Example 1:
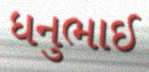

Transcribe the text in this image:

ધનુભાઈ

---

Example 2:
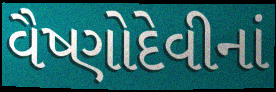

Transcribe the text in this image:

વૈષ્ણોદેવીનાં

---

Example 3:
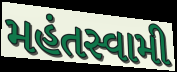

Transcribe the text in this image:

મહંતસ્વામી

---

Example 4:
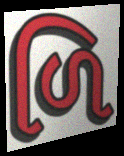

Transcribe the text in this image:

ળિ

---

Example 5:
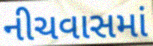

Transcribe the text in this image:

નીચવાસમાં